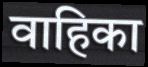
वाहिका